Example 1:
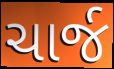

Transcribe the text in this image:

ચાર્જ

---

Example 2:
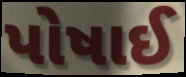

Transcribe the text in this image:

પોષાઈ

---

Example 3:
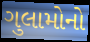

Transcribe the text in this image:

ગુલામોનો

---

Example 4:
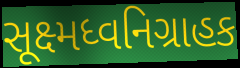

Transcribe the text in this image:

સૂક્ષ્મધ્વનિગ્રાહક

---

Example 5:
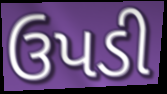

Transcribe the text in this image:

ઉપડી